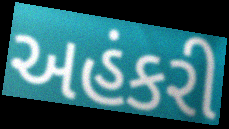
અહંકરી